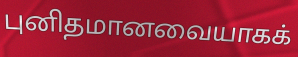
புனிதமானவையாகக்